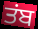
ਤਂਬ